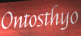
Ontosthyo